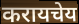
करायचेय